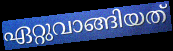
ഏറ്റുവാങ്ങിയത്